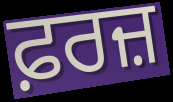
ਫ਼ਰਜ਼